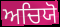
ਅਚਿਯੋ